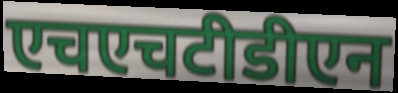
एचएचटीडीएन